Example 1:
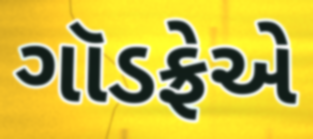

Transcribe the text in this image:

ગૉડફ્રેએ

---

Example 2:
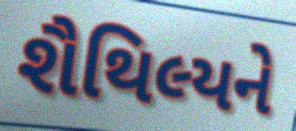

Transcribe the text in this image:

શૈથિલ્યને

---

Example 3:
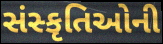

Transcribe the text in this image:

સંસ્કૃતિઓની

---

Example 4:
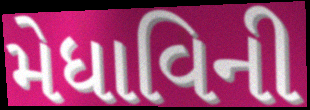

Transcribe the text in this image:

મેધાવિની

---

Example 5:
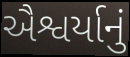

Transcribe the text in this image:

ઐશ્વર્યાનું